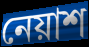
নেয়াশ